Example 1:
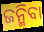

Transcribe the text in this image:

ଜନ୍ମିବା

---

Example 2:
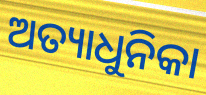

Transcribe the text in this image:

ଅତ୍ୟାଧୁନିକା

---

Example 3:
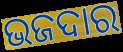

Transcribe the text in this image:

ଭଜଦାର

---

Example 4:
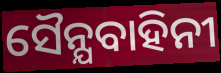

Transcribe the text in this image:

ସୈନ୍ଯବାହିନୀ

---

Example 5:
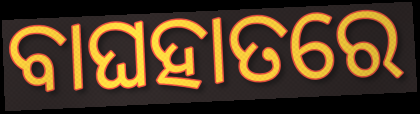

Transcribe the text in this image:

ବାଘହାତରେ